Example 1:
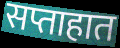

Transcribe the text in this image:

सप्ताहात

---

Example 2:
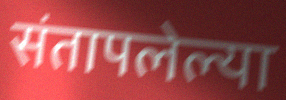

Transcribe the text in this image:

संतापलेल्या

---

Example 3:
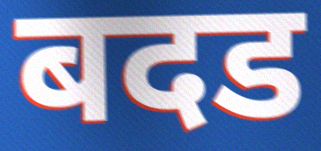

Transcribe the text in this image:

बदड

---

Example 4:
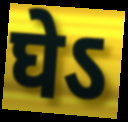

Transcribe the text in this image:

घेऽ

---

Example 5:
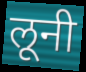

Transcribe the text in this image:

लूनी